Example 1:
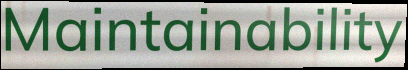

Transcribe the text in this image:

Maintainability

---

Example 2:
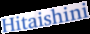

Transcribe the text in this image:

Hitaishini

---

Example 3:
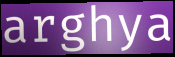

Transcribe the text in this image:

arghya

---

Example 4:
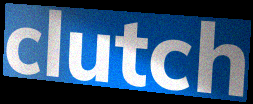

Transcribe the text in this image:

clutch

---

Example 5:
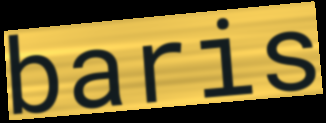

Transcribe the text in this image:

baris